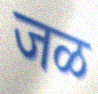
जळ